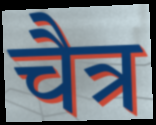
चैत्र